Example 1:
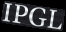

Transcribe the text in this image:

IPGL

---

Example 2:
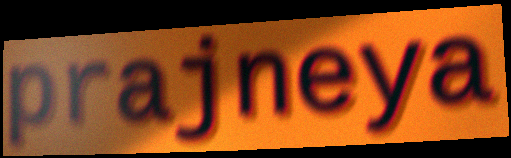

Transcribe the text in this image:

prajneya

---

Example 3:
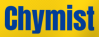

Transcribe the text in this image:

Chymist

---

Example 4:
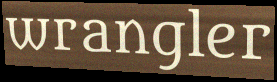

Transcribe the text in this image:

wrangler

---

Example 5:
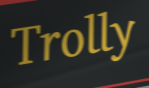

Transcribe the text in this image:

Trolly